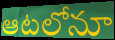
ఆటలోనూ